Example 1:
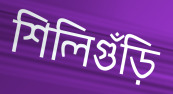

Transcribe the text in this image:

শিলিগুঁড়ি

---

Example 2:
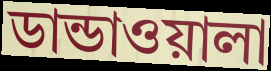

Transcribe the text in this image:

ডান্ডাওয়ালা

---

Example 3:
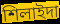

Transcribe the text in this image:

শিলাইদা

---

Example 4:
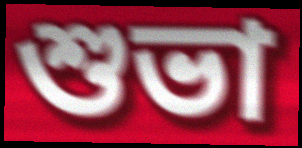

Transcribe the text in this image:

শুভা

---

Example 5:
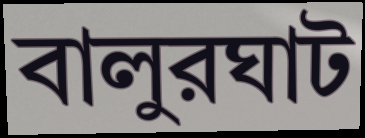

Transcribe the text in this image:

বালুরঘাট